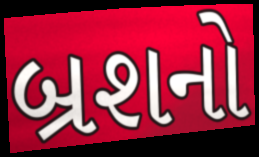
બ્રશનો